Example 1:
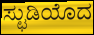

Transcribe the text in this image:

ಸ್ಟುಡಿಯೊದ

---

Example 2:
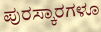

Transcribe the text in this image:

ಪುರಸ್ಕಾರಗಳೂ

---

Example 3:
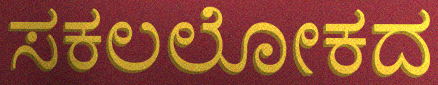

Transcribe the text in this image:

ಸಕಲಲೋಕದ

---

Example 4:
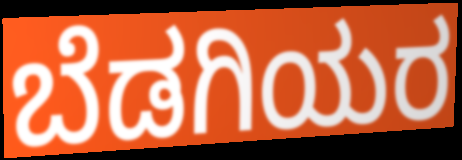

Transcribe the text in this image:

ಬೆಡಗಿಯರ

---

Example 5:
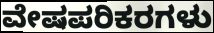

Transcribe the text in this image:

ವೇಷಪರಿಕರಗಳು